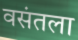
वसंतला